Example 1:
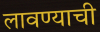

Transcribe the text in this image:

लावण्याची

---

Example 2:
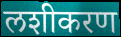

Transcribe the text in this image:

लशीकरण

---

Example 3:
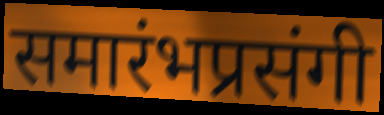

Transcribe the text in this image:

समारंभप्रसंगी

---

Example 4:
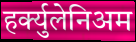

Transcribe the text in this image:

हर्क्युलेनिअम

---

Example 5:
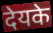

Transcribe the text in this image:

देयके